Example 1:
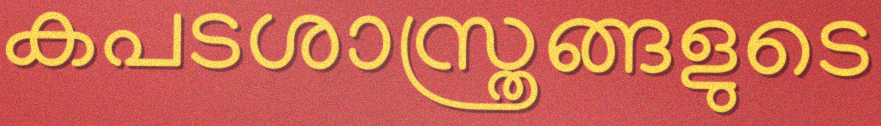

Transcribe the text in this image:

കപടശാസ്ത്രങ്ങളുടെ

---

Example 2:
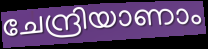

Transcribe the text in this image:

ചേന്ദ്രിയാണാം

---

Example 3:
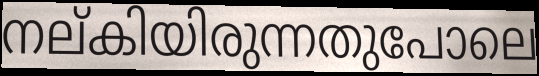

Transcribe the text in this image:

നല്കിയിരുന്നതുപോലെ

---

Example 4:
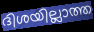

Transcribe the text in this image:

ദിശയില്ലാത്ത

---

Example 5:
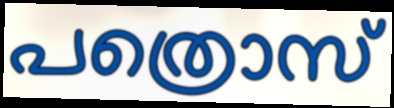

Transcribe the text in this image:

പത്രൊസ്